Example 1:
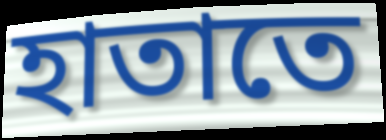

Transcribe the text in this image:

হাতাতে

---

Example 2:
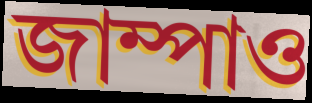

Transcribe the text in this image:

জাম্পাও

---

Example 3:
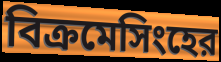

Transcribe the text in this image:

বিক্রমেসিংহের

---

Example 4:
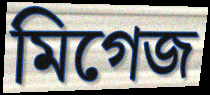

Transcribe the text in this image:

মিগেজ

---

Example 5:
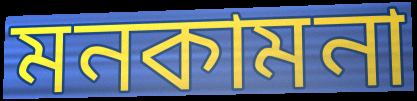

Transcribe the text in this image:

মনকামনা